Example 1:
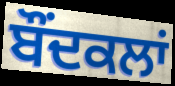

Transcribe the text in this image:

ਬੌਂਦਕਲਾਂ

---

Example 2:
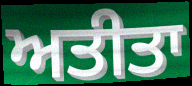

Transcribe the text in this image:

ਅਤੀਤਾ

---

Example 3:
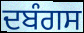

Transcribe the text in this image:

ਦਬੰਗਸ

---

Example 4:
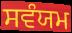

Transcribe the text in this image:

ਸਵੰਯਮ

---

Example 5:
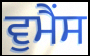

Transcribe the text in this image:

ਵੁਮੈਂਸ